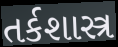
તર્કશાસ્ત્ર